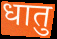
धातु